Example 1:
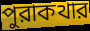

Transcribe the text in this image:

পুরাকথার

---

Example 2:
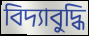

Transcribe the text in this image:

বিদ্যাবুদ্ধি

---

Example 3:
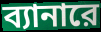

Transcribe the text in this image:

ব্যানারে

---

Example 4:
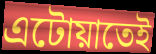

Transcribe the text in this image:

এটোয়াতেই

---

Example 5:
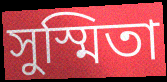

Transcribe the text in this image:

সুস্মিতা